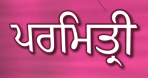
ਪਰਮਿਤ੍ਰੀ